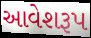
આવેશરૂપ